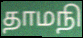
தாமநி